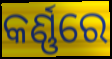
କର୍ଣ୍ଣରେ